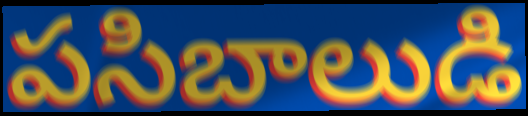
పసిబాలుడి